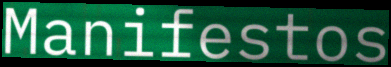
Manifestos